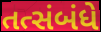
તત્સંબંધે